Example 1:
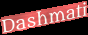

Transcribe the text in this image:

Dashmati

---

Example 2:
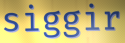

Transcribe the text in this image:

siggir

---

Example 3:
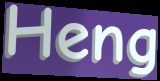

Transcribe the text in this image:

Heng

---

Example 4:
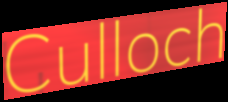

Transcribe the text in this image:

Culloch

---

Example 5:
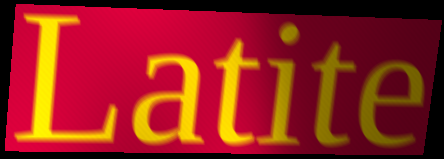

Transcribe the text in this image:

Latite